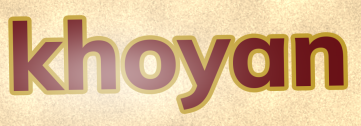
khoyan